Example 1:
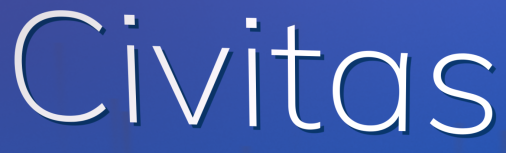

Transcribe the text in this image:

Civitas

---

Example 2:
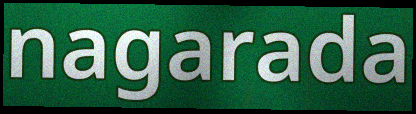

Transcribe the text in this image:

nagarada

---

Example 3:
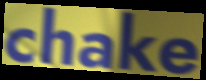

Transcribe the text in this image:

chake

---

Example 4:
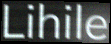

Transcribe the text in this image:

Lihile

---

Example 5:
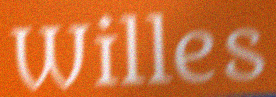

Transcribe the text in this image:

Willes